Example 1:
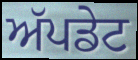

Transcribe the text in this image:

ਅੱਪਡੇਟ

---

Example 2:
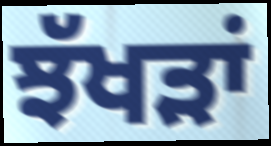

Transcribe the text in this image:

ਝੱਖੜਾਂ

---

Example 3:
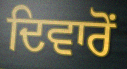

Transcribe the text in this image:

ਦਿਵਾਰੋਂ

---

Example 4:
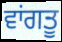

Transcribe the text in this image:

ਵਾਂਗਤੂ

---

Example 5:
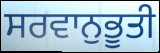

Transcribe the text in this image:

ਸਰਵਾਨੁਭੂਤੀ